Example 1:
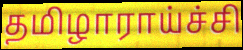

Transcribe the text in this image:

தமிழாராய்ச்சி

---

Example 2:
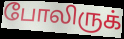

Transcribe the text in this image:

போலிருக்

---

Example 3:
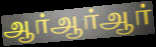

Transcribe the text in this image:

ஆர்ஆர்ஆர்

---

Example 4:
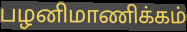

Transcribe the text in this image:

பழனிமாணிக்கம்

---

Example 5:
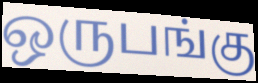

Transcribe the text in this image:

ஒருபங்கு